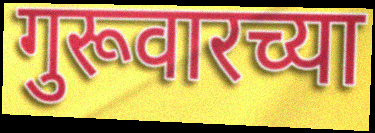
गुरूवारच्या